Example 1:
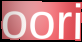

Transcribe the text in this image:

oori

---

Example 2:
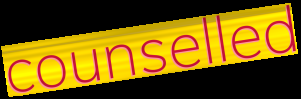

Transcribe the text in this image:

counselled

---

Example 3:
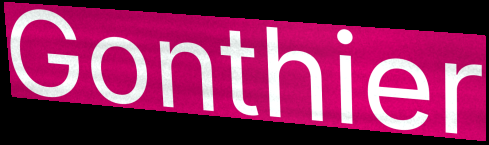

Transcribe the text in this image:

Gonthier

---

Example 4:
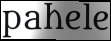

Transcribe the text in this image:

pahele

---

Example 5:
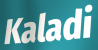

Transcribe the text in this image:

Kaladi